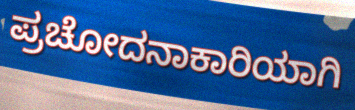
ಪ್ರಚೋದನಾಕಾರಿಯಾಗಿ